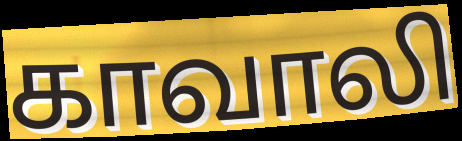
காவாலி